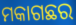
ମକାଗଛର